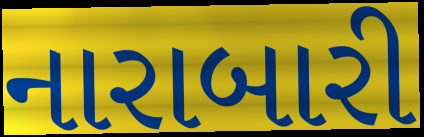
નારાબારી